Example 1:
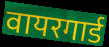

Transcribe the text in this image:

वायरगार्ड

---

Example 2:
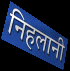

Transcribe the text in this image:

निहलानी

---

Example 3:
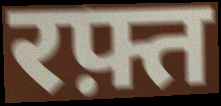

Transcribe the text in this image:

रफ़्त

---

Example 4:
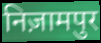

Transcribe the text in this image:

निज़ामपुर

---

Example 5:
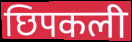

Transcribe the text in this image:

छिपकली